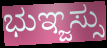
ಭುಞ್ಜಸ್ಸು